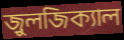
জ়ুলজিক্যাল